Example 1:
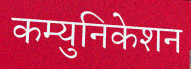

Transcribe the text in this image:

कम्युनिकेशन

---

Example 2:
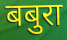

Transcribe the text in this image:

बबुरा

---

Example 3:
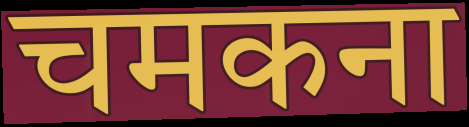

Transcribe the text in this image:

चमकना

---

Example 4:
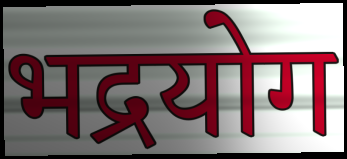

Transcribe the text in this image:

भद्रयोग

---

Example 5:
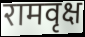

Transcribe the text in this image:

रामवृक्ष